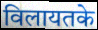
विलायतके